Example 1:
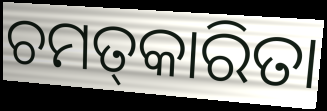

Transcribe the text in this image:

ଚମତ୍‌କାରିତା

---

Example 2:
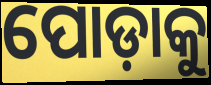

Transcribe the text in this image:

ପୋଡ଼ାକୁ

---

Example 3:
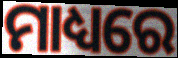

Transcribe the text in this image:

ମାଧ୍ୟରେ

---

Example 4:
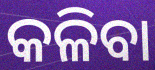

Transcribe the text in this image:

କଳିବା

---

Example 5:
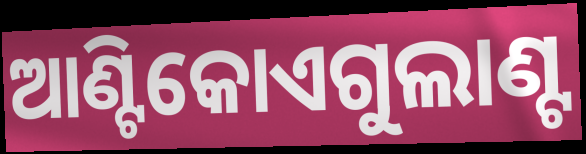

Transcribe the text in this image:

ଆଣ୍ଟିକୋଏଗୁଲାଣ୍ଟ